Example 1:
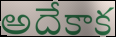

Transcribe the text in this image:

అదేకాక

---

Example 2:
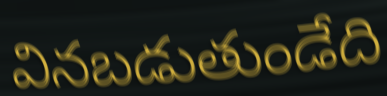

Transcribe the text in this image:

వినబడుతుండేది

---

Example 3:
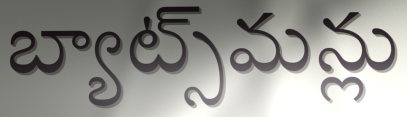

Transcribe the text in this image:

బ్యాట్స్‌మన్లు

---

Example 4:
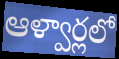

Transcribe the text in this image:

ఆళ్వార్లలో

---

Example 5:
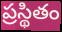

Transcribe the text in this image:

ప్రస్థితం